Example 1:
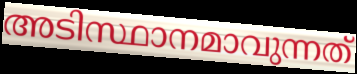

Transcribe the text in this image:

അടിസ്ഥാനമാവുന്നത്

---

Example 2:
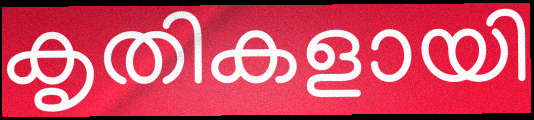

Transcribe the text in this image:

കൃതികളായി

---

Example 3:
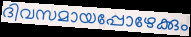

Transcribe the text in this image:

ദിവസമായപ്പോഴേക്കും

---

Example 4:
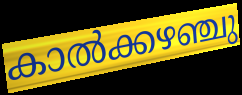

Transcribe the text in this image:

കാൽക്കഴഞ്ചു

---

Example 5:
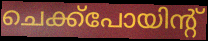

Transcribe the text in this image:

ചെക്ക്പോയിന്റ്